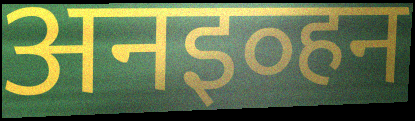
अनइव्हन